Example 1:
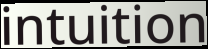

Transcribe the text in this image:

intuition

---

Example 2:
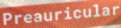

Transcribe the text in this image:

Preauricular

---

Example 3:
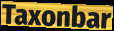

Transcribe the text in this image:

Taxonbar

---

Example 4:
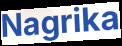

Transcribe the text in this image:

Nagrika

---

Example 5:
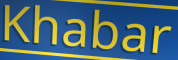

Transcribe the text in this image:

Khabar